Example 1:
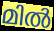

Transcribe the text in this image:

മിൽ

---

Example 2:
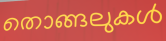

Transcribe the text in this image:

തൊങ്ങലുകൾ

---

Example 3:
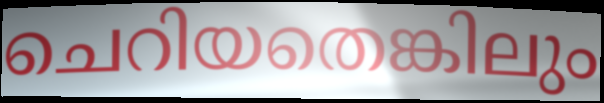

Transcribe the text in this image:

ചെറിയതെങ്കിലും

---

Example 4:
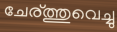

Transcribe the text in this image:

ചേര്ത്തുവെച്ചു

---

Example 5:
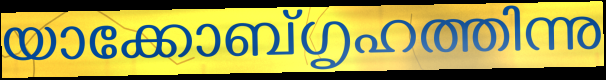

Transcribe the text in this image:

യാക്കോബ്ഗൃഹത്തിന്നു